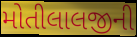
મોતીલાલજીની